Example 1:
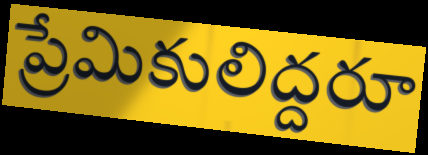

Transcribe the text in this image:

ప్రేమికులిద్దరూ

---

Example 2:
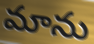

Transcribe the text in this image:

మాను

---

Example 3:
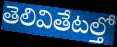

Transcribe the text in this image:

తెలివితేటల్తో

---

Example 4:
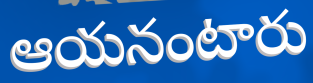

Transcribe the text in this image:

ఆయనంటారు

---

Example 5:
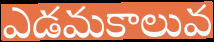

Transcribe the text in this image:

ఎడమకాలువ